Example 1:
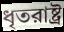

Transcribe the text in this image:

ধৃতরাষ্ট্র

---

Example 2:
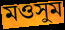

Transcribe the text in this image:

মওসুম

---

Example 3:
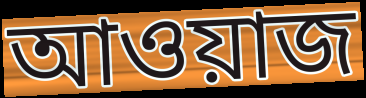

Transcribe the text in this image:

আওয়াজ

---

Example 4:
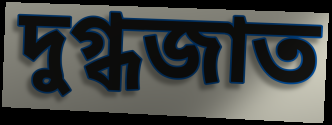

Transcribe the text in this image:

দুগ্ধজাত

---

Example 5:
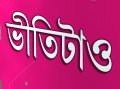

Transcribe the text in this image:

ভীতিটাও